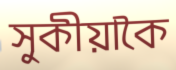
সুকীয়াকৈ